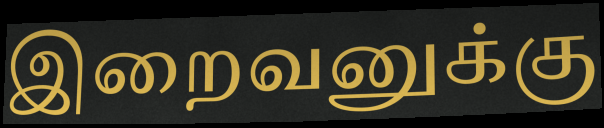
இறைவனுக்கு